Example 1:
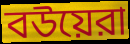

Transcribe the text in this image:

বউয়েরা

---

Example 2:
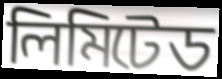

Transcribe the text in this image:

লিমিটেড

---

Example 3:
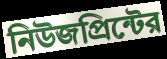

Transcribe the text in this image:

নিউজপ্রিন্টের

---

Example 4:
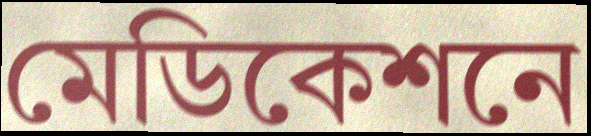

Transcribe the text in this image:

মেডিকেশনে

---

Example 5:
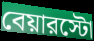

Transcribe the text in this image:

বেয়ারস্টো